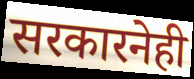
सरकारनेही